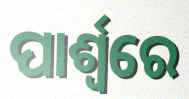
ପାର୍ଶ୍ୱରେ